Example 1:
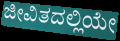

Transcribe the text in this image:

ಜೀವಿತದಲ್ಲಿಯೇ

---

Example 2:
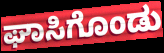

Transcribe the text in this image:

ಘಾಸಿಗೊಂಡು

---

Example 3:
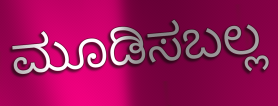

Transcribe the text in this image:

ಮೂಡಿಸಬಲ್ಲ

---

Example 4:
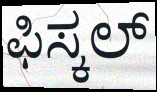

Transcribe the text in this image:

ಫಿಸ್ಕಲ್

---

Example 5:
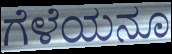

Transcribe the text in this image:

ಗೆಳೆಯನೂ